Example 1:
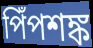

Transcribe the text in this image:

পিঁপশঙ্ক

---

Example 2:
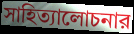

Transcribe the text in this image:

সাহিত্যালোচনার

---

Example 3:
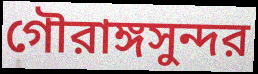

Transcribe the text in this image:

গৌরাঙ্গসুন্দর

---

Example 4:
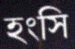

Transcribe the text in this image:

হংসি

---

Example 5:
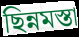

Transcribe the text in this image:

ছিন্নমস্তা